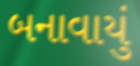
બનાવાયું